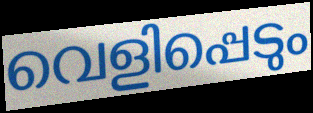
വെളിപ്പെടും